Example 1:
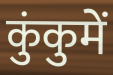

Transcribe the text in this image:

कुंकुमें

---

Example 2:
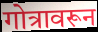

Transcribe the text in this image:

गोत्रावरून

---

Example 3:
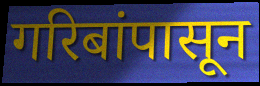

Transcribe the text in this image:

गरिबांपासून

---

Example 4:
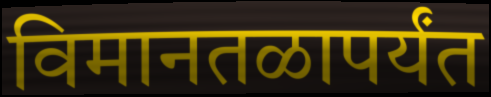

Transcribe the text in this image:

विमानतळापर्यंत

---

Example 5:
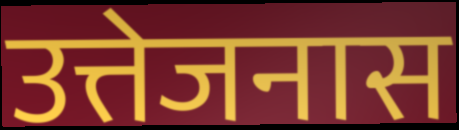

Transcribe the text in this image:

उत्तेजनास